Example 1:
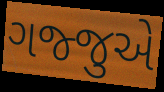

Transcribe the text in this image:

ગજ્જુએ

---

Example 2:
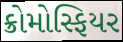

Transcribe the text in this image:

ક્રોમોસ્ફિયર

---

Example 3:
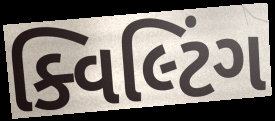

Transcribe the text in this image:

ક્વિલ્ટિંગ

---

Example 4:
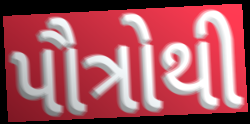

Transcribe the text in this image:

પૌત્રોથી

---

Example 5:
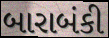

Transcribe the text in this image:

બારાબંકી